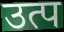
उत्प